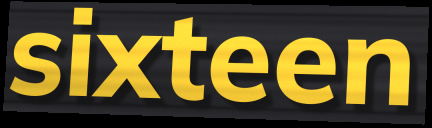
sixteen